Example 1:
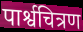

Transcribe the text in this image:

पार्श्वचित्रण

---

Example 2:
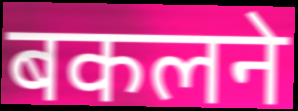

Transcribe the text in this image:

बकलने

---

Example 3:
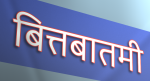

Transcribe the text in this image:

बित्तबातमी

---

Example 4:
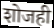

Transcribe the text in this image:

शोजही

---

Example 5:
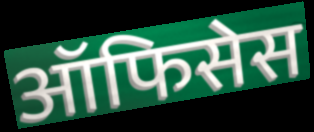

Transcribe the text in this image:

ऑफिसेस